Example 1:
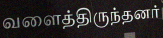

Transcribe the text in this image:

வளைத்திருந்தனர்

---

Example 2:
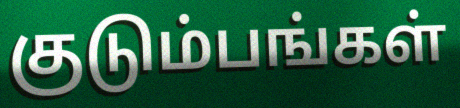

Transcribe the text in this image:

குடும்பங்கள்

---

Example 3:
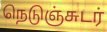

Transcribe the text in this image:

நெடுஞ்சுடர்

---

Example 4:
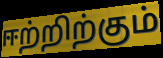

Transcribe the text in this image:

ஈற்றிற்கும்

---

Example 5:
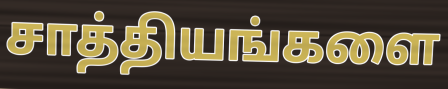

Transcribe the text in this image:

சாத்தியங்களை